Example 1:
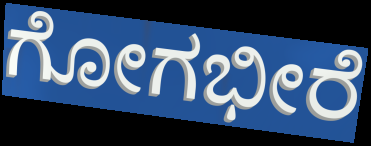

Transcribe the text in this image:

ಗೋಗಭೀರೆ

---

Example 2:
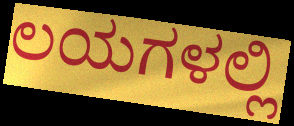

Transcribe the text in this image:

ಲಯಗಳಲ್ಲಿ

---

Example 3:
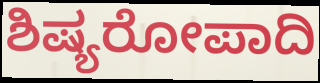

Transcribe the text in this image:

ಶಿಷ್ಯರೋಪಾದಿ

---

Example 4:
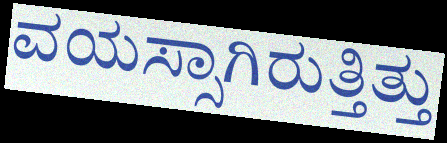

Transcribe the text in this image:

ವಯಸ್ಸಾಗಿರುತ್ತಿತ್ತು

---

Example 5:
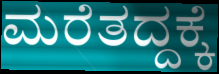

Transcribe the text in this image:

ಮರೆತದ್ದಕ್ಕೆ